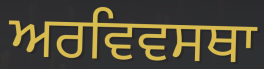
ਅਰਵਿਵਸਥਾ